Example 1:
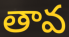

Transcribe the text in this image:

తావ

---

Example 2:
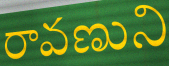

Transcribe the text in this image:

రావణుని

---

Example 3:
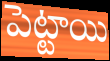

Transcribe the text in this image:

పెట్టాయి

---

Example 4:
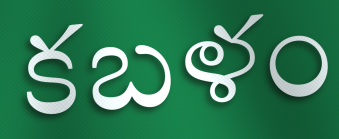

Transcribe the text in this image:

కబళం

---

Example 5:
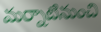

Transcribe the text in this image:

మర్నాటినుంచి